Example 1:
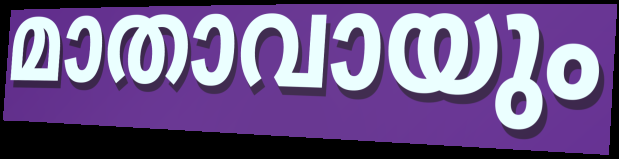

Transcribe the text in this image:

മാതാവായും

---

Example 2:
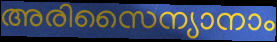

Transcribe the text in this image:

അരിസൈന്യാനാം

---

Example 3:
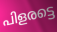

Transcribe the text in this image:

പിളരട്ടെ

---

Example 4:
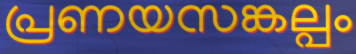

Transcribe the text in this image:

പ്രണയസങ്കല്പം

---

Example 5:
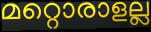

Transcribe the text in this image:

മറ്റൊരാളല്ല